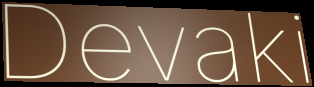
Devaki